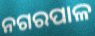
ନଗରପାଳ